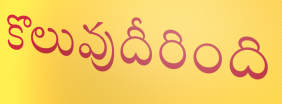
కొలువుదీరింది